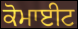
ਕੋਮਾਈਟ